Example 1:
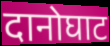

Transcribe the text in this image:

दानोघाट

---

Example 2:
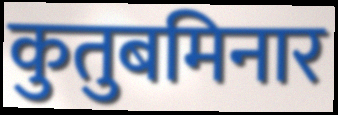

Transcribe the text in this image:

कुतुबमिनार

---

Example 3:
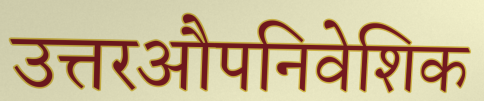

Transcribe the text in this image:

उत्तरऔपनिवेशिक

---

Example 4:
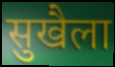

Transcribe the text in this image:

सुखैला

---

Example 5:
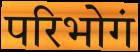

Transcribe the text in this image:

परिभोगं